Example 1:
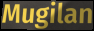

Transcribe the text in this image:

Mugilan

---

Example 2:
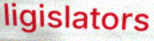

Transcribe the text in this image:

ligislators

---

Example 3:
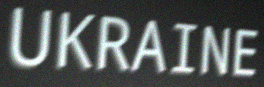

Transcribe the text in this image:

UKRAINE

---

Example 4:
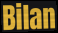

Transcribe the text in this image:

Bilan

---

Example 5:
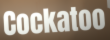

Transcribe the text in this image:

Cockatoo